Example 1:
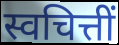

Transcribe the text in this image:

स्वचित्तीं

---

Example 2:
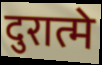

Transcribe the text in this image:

दुरात्मे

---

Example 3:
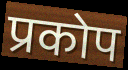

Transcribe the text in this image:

प्रकोप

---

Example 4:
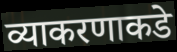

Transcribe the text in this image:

व्याकरणाकडे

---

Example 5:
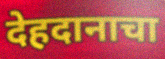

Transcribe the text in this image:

देहदानाचा